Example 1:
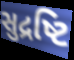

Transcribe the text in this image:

સુદ્રષ્ટિ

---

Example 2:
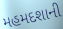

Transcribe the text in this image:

મહમદશાની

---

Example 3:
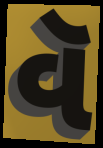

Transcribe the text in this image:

વૅ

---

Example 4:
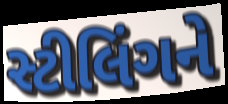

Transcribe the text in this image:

સ્ટીલિંગને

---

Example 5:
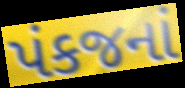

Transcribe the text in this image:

પંકજનાં